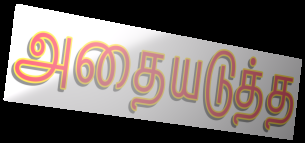
அதையடுத்த